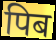
पिब